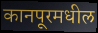
कानपूरमधील